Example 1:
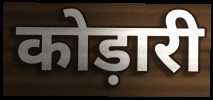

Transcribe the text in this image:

कोड़ारी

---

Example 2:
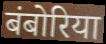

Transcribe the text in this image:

बंबोरिया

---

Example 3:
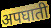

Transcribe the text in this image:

अपघाती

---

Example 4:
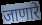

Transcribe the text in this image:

जाणारे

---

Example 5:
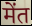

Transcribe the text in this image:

मेंत